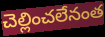
చెల్లించలేనంత